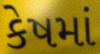
કેષમાં